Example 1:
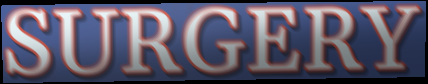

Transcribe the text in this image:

SURGERY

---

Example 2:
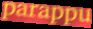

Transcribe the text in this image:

parappu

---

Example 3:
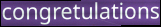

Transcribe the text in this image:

congretulations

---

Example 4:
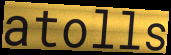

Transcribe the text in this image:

atolls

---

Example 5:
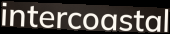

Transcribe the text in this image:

intercoastal